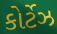
કોર્ટેઝ